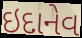
ઇદાનેવ